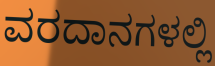
ವರದಾನಗಳಲ್ಲಿ